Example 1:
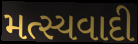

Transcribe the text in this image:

મત્સ્યવાદી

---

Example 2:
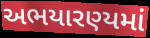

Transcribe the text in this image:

અભયારણ્યમાં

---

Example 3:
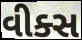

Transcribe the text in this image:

વીક્સ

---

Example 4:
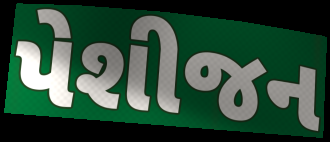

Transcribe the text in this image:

પેશીજન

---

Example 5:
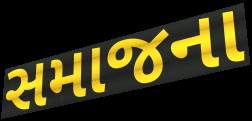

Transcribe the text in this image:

સમાજના